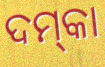
ଦମ୍‌କା